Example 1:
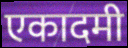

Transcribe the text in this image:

एकादमी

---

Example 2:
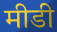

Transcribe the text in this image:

मीडी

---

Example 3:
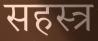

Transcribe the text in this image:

सहस्‍त्र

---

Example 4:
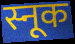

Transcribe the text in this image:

स्नूक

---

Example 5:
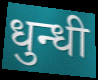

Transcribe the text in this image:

धुन्धी